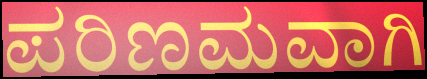
ಪರಿಣಮವಾಗಿ